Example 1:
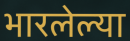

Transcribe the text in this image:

भारलेल्या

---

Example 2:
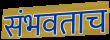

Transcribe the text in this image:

संभवताच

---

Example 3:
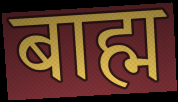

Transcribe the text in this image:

बाह्म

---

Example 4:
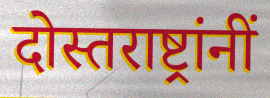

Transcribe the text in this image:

दोस्तराष्ट्रांनीं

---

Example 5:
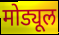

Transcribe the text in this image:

मोड्यूल